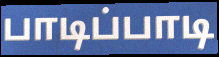
பாடிப்பாடி